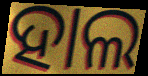
ହାଲ